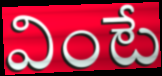
వింటే